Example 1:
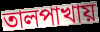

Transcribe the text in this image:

তালপাখায়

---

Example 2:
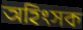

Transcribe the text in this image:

অহিংসক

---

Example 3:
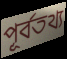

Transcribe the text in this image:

পূর্বতথ্য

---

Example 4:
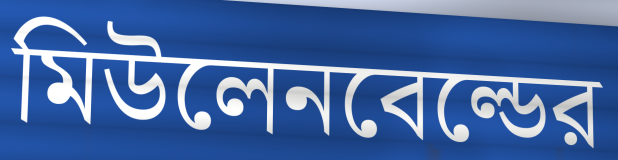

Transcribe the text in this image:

মিউলেনবেল্ডের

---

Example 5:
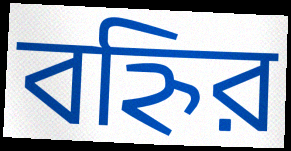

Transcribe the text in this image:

বহ্নির